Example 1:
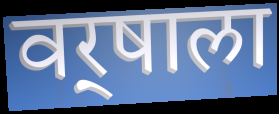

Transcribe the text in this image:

वर्षाला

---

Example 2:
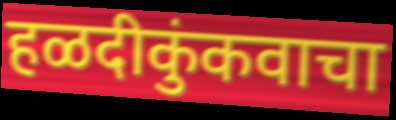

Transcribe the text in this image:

हळदीकुंकवाचा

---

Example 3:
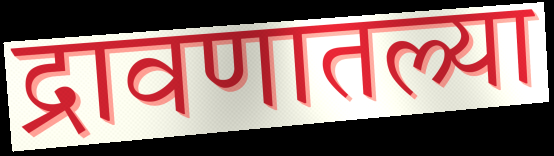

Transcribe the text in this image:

द्रावणातल्या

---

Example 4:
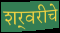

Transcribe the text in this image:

शर्वरीचे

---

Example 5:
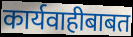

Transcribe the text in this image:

कार्यवाहीबाबत